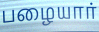
பழையார்